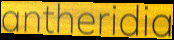
antheridia